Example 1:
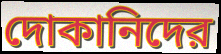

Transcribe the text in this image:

দোকানিদের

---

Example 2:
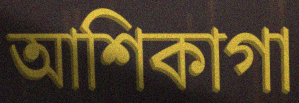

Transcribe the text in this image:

আশিকাগা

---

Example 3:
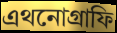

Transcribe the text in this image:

এথনোগ্রাফি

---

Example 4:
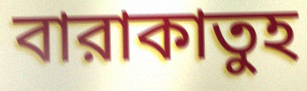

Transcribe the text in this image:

বারাকাতুহ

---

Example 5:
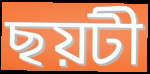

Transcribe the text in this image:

ছয়টী